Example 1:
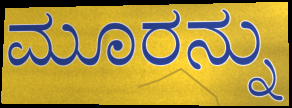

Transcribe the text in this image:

ಮೂರನ್ನು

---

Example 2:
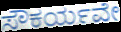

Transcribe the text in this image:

ಸೌಕರ್ಯವೇ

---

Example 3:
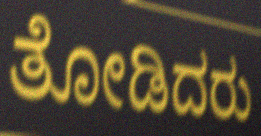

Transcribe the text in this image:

ತೋಡಿದರು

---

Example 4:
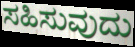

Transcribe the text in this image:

ಸಹಿಸುವುದು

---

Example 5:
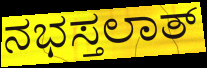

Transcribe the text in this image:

ನಭಸ್ತಲಾತ್